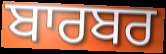
ਬਾਰਬਰ